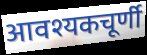
आवश्यकचूर्णी